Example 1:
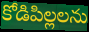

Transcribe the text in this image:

కోడిపిల్లలను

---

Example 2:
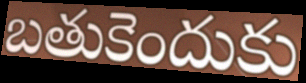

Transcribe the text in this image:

బతుకెందుకు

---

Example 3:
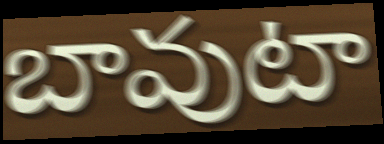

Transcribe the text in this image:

బావుటా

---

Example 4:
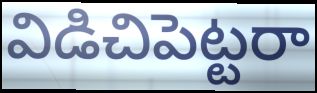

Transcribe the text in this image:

విడిచిపెట్టరా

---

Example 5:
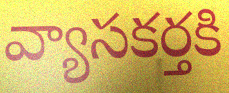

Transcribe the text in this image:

వ్యాసకర్తకి